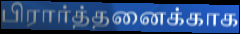
பிரார்த்தனைக்காக